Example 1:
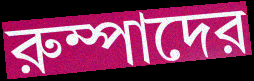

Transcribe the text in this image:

রুম্পাদের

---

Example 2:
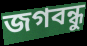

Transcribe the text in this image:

জগবন্ধু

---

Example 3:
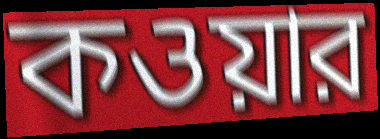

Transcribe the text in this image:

কওয়ার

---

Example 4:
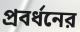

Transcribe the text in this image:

প্রবর্ধনের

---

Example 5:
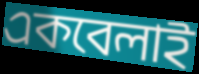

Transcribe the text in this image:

একবেলাই